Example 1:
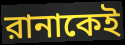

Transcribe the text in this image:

রানাকেই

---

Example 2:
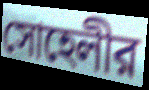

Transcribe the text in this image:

সোহেলীর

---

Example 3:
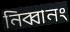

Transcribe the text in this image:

নিব্বানং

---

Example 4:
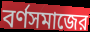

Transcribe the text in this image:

বর্ণসমাজের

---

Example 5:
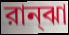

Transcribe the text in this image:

রান্ঝা